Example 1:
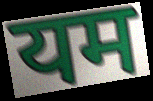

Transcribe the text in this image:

यम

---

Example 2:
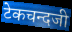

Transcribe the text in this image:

टेकचन्दजी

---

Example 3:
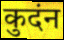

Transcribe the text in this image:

कुदंन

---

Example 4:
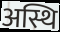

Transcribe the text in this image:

अस्थि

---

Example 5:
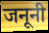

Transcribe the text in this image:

जनूनी